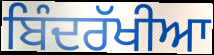
ਬਿੰਦਰੱਖੀਆ